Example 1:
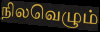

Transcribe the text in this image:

நிலவெழும்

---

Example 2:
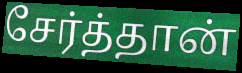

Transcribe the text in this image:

சேர்த்தான்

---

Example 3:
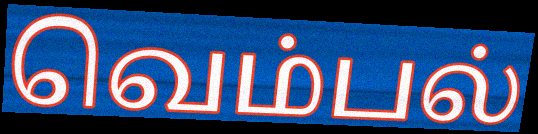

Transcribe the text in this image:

வெம்பல்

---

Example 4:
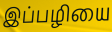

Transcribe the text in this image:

இப்பழியை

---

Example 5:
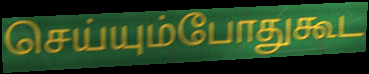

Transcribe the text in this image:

செய்யும்போதுகூட